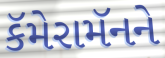
કૅમેરામૅનને